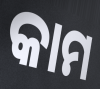
କାମ